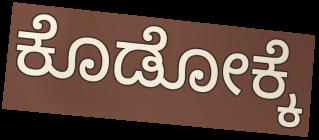
ಕೊಡೋಕ್ಕೆ